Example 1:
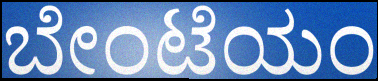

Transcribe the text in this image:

ಬೇಂಟೆಯಂ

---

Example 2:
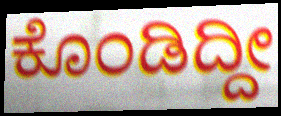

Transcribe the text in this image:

ಕೊಂಡಿದ್ದೀ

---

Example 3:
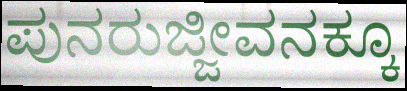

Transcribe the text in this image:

ಪುನರುಜ್ಜೀವನಕ್ಕೂ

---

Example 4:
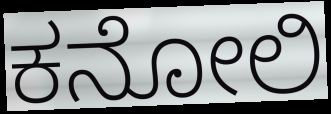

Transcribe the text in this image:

ಕನೋಲಿ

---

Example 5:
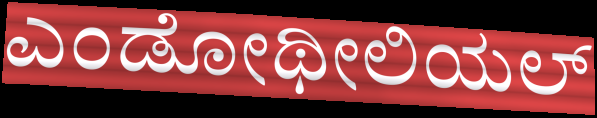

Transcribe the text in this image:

ಎಂಡೋಥೀಲಿಯಲ್